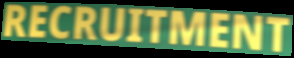
RECRUITMENT